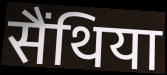
सैंथिया